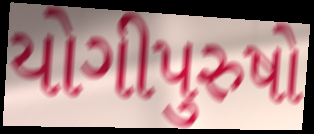
યોગીપુરુષો